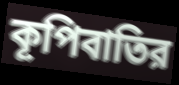
কূপিবাতির